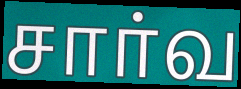
சார்வ